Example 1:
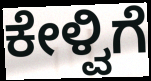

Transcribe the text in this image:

ಕೇಳ್ವಿಗೆ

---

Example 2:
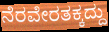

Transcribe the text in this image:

ನೆರವೇರತಕ್ಕದ್ದು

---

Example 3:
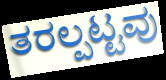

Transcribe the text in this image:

ತರಲ್ಪಟ್ಟವು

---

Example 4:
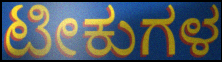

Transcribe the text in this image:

ಟೀಕುಗಳ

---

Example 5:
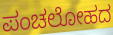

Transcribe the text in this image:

ಪಂಚಲೋಹದ